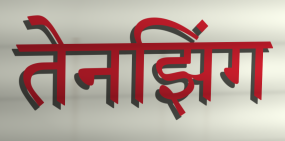
तेनझिंग